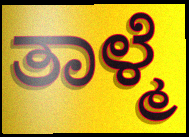
ತಾಳ್ಮೆ